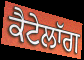
ਕੈਟੇਲਾੱਗ